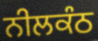
ਨੀਲਕੰਠ